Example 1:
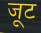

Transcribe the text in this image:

जूट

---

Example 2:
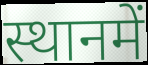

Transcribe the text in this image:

स्थानमें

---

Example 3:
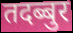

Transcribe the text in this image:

तदब्बुर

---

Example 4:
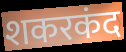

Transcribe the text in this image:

शकरकंद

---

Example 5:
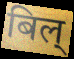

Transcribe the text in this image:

बिल्